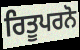
ਰਿਤੂਪਰਨੋ